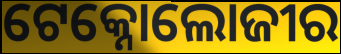
ଟେକ୍ନୋଲୋଜୀର